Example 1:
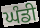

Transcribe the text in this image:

ਘੰਡੀ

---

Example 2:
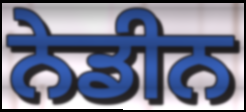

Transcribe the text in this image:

ਨੇਡੀਨ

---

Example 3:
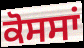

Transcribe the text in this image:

ਕੋਸਸਾਂ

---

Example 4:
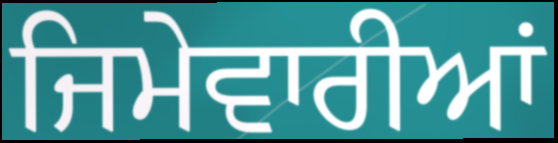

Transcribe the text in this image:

ਜਿਮੇਵਾਰੀਆਂ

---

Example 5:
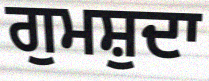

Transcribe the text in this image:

ਗੁਮਸ਼ੁਦਾ